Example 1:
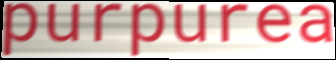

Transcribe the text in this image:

purpurea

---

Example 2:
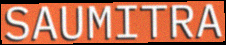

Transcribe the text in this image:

SAUMITRA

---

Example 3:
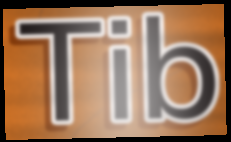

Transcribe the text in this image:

Tib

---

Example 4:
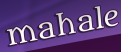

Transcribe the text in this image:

mahale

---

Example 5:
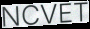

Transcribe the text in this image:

NCVET